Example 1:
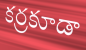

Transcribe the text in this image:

కర్రకూడా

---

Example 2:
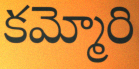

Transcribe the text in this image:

కమ్మోరి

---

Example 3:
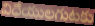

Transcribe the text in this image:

విధేయులగుటకు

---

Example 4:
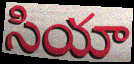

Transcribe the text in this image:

సియా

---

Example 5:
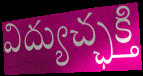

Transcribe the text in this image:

విద్యుచ్ఛక్తి